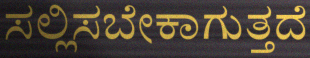
ಸಲ್ಲಿಸಬೇಕಾಗುತ್ತದೆ